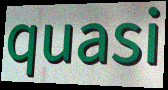
quasi